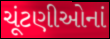
ચૂંટણીઓનાં